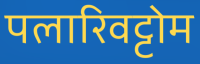
पलारिवट्टोम